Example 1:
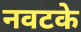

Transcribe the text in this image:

नवटके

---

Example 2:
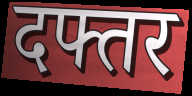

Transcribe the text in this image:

दफ्तर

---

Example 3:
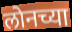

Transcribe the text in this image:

लोनच्या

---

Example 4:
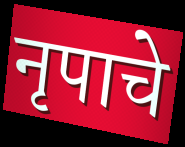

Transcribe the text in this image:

नृपाचे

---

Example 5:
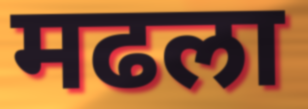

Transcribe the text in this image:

मढला